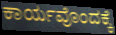
ಕಾರ್ಯವೊಂದಕ್ಕೆ